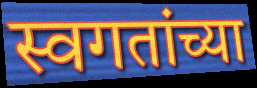
स्वगतांच्या